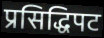
प्रसिद्धिपट